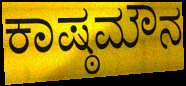
ಕಾಷ್ಠಮೌನ